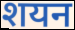
शयन